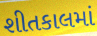
શીતકાલમાં